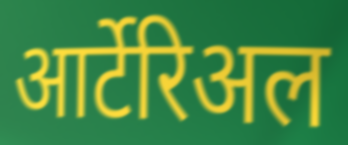
आर्टेरिअल